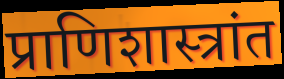
प्राणिशास्त्रांत